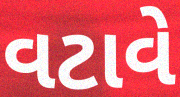
વટાવે